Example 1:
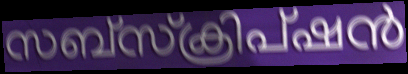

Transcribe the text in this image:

സബ്സ്ക്രിപ്ഷൻ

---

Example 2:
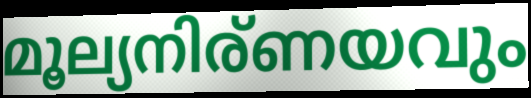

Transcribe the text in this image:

മൂല്യനിര്ണയവും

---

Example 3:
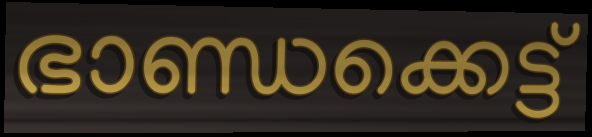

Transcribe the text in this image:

ഭാണ്ഡക്കെട്ട്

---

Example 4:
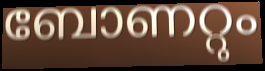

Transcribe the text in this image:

ബോണറ്റും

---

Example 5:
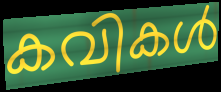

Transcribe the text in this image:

കവികൾ